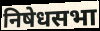
निषेधसभा